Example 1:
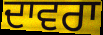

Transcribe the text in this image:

ਦਾਵਰਾ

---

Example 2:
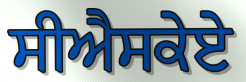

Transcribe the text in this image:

ਸੀਐਸਕੇਏ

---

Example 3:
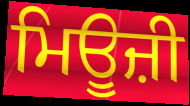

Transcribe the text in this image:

ਮਿਊਜ਼ੀ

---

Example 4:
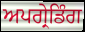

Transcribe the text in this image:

ਅਪਗ੍ਰੇਡਿੰਗ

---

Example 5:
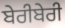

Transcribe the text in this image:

ਬੇਰੀਬੇਰੀ